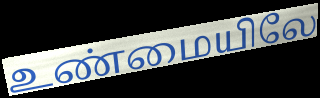
உண்மையிலே